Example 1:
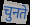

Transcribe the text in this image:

चुनते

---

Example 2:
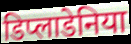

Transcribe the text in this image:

डिप्लाडेनिया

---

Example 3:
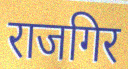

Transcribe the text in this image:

राजगिर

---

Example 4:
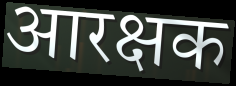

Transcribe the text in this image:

आरक्षक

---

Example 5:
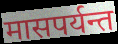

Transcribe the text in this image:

मासपर्यन्त